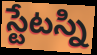
స్టేటస్ని